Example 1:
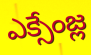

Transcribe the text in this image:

ఎక్సేంజ్ల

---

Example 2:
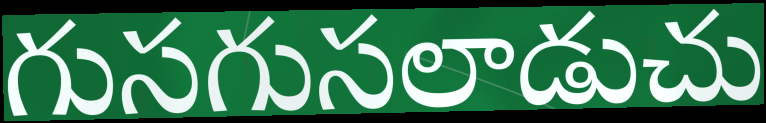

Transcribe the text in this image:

గుసగుసలాడుచు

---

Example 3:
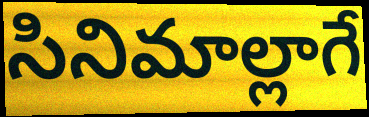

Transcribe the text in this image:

సినిమాల్లాగే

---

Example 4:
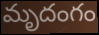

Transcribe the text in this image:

మృదంగం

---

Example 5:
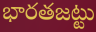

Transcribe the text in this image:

భారతజట్టు